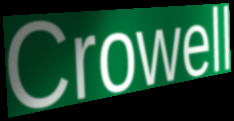
Crowell